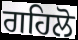
ਗਹਿਲੋ